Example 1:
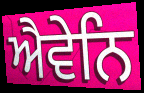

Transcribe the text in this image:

ਐਵੇਨਿ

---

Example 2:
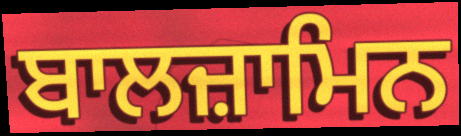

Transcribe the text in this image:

ਬਾਲਜ਼ਾਮਿਨ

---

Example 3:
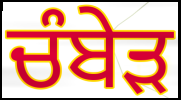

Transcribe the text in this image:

ਚੰਬੇੜ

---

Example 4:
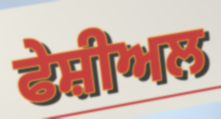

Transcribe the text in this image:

ਫੇਸ਼ੀਅਲ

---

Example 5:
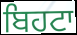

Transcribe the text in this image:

ਬਿਹਟਾ